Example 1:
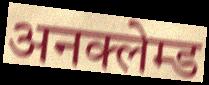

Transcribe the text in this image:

अनक्लेम्ड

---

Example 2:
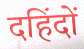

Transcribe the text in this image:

दहिंदों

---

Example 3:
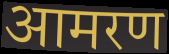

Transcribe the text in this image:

आमरण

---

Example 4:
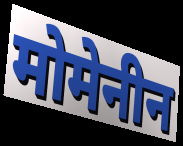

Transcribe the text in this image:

मोमेनीन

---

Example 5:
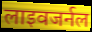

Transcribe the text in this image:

लाइवजर्नल